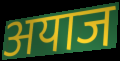
अयाज